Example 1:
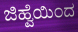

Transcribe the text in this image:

ಜಿಹ್ವೆಯಿಂದ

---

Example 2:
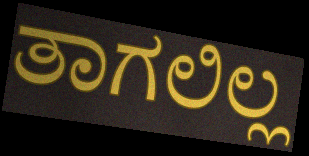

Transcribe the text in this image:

ತಾಗಲಿಲ್ಲ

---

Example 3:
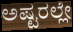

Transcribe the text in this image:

ಅಷ್ಟರಲ್ಲೇ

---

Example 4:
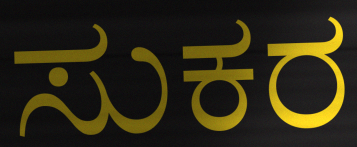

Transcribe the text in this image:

ಸುಕರ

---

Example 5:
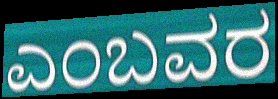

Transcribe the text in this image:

ಎಂಬವರ